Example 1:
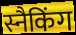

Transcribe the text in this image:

स्नैकिंग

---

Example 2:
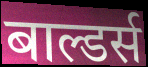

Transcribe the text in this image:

बाल्डर्स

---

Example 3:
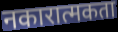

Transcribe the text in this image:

नकारात्मकता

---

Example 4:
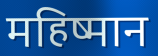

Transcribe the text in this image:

महिष्मान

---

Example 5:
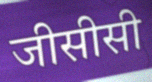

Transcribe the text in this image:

जीसीसी